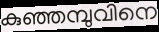
കുഞ്ഞമ്പുവിനെ